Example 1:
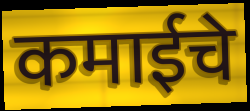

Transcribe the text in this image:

कमाईचे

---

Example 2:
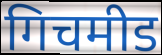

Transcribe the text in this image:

गिचमीड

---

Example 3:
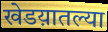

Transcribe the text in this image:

खेडय़ातल्या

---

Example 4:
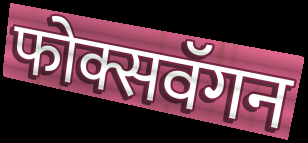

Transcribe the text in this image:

फोक्सवॅगन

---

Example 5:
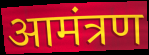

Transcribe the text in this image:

आमंत्रण